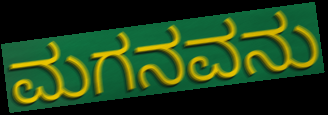
ಮಗನವನು